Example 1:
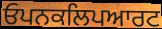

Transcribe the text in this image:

ਓਪਨਕਲਿਪਆਰਟ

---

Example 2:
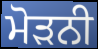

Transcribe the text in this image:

ਮੋੜਨੀ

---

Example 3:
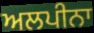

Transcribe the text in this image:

ਅਲਪੀਨਾ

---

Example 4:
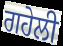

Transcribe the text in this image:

ਗਹੇਲੀ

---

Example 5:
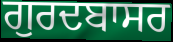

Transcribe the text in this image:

ਗੁਰਦਬਾਸਰ